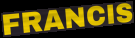
FRANCIS